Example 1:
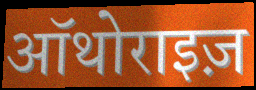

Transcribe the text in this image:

ऑथोराइज़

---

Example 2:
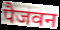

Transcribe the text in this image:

पैजवन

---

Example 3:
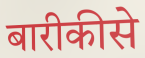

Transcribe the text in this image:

बारीकीसे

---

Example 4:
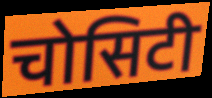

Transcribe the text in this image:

चोसिटी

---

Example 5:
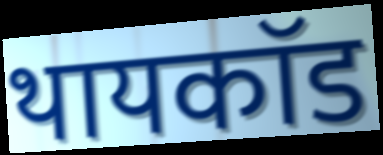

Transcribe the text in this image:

थायकॉड